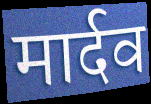
मार्दव